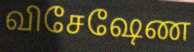
விசேஷேண